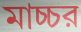
মাচ্চর